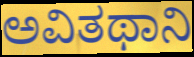
ಅವಿತಥಾನಿ